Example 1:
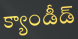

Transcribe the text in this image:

క్యాండీడ్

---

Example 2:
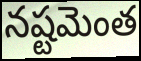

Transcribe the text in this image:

నష్టమెంత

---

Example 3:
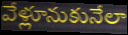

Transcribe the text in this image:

వేళ్లూనుకునేలా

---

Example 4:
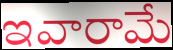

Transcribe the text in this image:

ఇవారామే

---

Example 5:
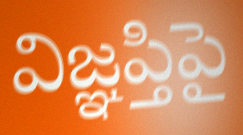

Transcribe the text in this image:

విజ్ఞప్తిపై